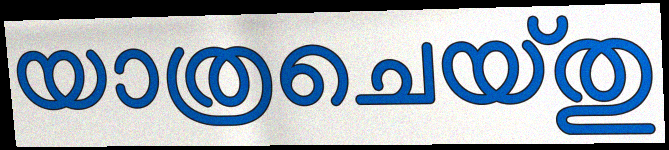
യാത്രചെയ്തു